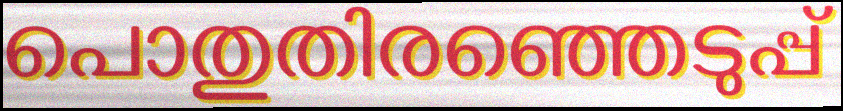
പൊതുതിരഞ്ഞെടുപ്പ്